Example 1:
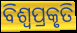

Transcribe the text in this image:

ବିଶ୍ଵପ୍ରକୃତି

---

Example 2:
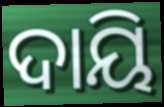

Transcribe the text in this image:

ଦାୟି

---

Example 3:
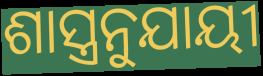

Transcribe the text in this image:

ଶାସ୍ତ୍ରନୁଯାୟୀ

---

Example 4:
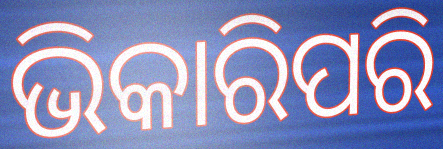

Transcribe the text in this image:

ଭିକାରିପରି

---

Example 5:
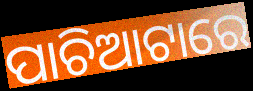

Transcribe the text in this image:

ପାଚିଆଟାରେ